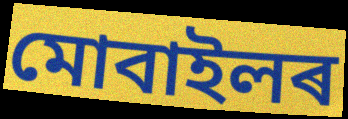
মোবাইলৰ